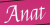
Anat